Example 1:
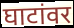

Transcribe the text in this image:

घाटांवर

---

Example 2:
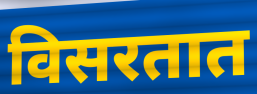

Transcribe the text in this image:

विसरतात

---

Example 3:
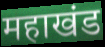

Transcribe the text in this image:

महाखंड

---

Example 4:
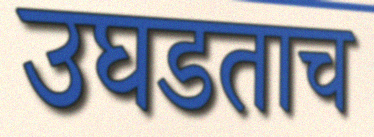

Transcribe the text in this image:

उघडताच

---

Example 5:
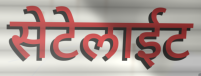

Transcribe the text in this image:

सेटेलाईट